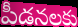
పీడనలకు